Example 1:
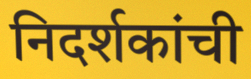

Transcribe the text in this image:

निदर्शकांची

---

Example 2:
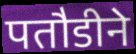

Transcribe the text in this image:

पतौडीने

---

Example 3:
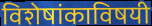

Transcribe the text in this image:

विशेषांकाविषयी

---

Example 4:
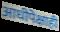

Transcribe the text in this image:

आधीपेक्षाही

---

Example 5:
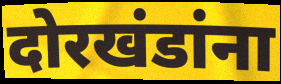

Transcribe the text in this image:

दोरखंडांना